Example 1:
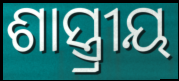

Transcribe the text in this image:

ଶାସ୍ତ୍ର୍ରୀୟ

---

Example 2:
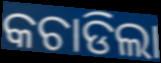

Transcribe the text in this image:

କଚାଡିଲା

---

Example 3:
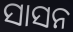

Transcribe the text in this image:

ସାସନ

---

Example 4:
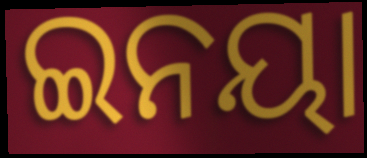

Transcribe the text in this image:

ଇନୟା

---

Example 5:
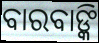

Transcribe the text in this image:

ବାରବାଙ୍କି